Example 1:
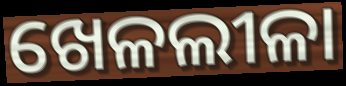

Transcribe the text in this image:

ଖେଳଲୀଳା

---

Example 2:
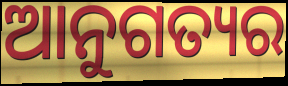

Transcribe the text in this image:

ଆନୁଗତ୍ୟର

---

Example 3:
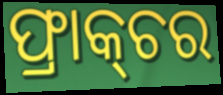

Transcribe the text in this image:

ଫ୍ରାକ୍‌ଚର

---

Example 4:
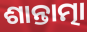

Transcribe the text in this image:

ଶାନ୍ତାତ୍ମା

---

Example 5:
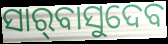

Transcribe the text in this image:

ସାର୍‌ବାସୁଦେବ